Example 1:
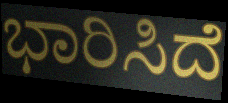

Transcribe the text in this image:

ಭಾರಿಸಿದೆ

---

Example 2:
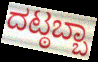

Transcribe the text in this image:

ದಟ್ಠಬ್ಬಾ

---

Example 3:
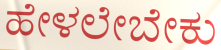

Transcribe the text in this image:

ಹೇಳಲೇಬೇಕು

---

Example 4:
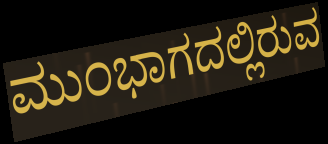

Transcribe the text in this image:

ಮುಂಭಾಗದಲ್ಲಿರುವ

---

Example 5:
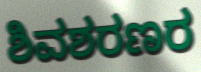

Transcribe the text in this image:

ಶಿವಶರಣರ